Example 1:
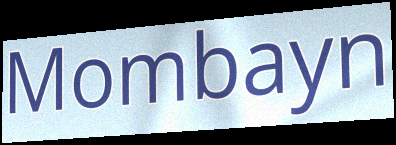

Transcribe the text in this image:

Mombayn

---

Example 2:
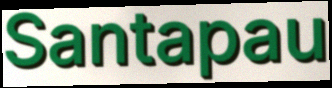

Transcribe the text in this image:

Santapau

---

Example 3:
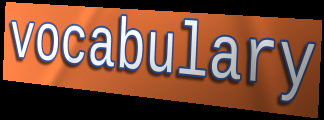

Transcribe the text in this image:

vocabulary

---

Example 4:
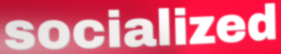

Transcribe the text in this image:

socialized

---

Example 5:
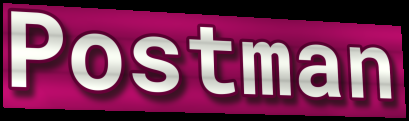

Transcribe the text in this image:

Postman